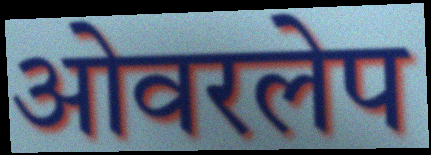
ओवरलेप